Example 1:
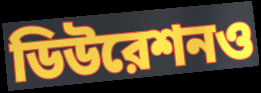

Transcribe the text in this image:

ডিউরেশনও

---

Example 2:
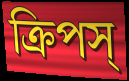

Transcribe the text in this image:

ক্রিপস্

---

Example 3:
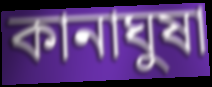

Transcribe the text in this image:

কানাঘুষা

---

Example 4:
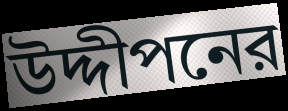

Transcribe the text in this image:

উদ্দীপনের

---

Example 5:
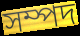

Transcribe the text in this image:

সম্পদ